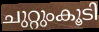
ചുറ്റുംകൂടി